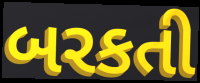
બરકતી